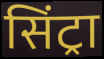
सिंट्रा